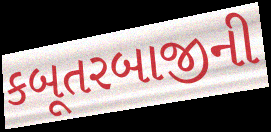
કબૂતરબાજીની